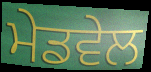
ਮੇਡਵੇਲ